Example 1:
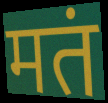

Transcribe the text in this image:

मतं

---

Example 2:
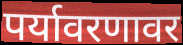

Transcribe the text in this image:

पर्यावरणावर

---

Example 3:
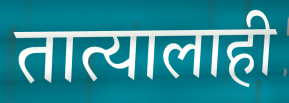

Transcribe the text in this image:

तात्यालाही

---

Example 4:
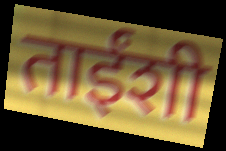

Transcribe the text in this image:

ताईंशी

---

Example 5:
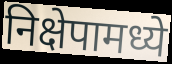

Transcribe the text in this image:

निक्षेपामध्ये